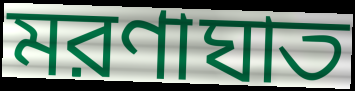
মরণাঘাত